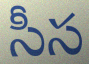
సీస